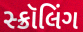
સ્ક્રૉલિંગ